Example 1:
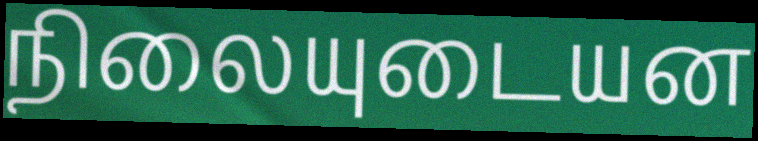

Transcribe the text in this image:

நிலையுடையன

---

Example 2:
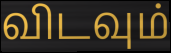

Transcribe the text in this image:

விடவும்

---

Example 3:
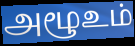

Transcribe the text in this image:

அழூஉம்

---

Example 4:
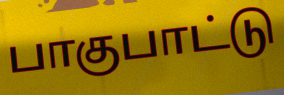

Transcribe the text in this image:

பாகுபாட்டு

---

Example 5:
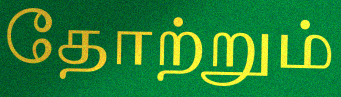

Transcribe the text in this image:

தோற்றும்